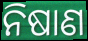
ନିଷାଣ